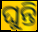
ଘୁନ୍ତି